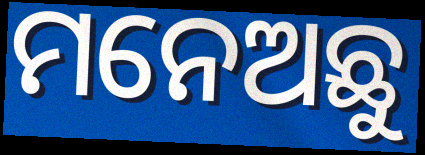
ମନେଅଛୁ